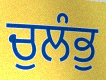
ਚੁਲੰਭੁ